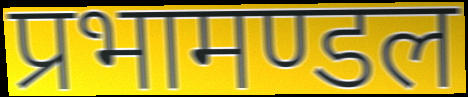
प्रभामण्डल